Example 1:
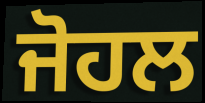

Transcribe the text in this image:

ਜੋਹਲ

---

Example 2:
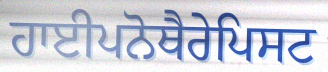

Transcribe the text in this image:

ਹਾਈਪਨੋਥੈਰੇਪਿਸਟ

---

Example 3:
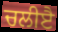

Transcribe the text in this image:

ਚਲੀੲੈ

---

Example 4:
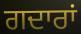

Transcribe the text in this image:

ਗਦਾਰਾਂ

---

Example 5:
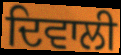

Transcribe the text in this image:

ਦਿਵਾਲੀ